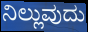
ನಿಲ್ಲುವುದು